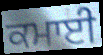
ਕਮਾਈ